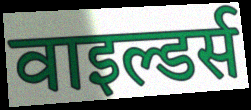
वाइल्डर्स